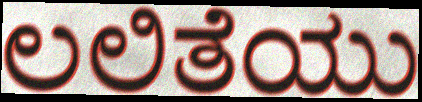
ಲಲಿತೆಯು